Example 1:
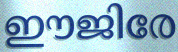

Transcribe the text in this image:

ഈജിരേ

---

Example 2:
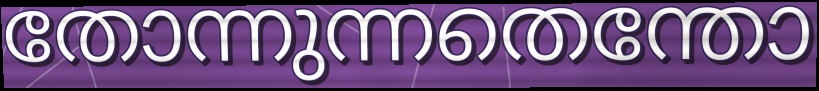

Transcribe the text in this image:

തോന്നുന്നതെന്തോ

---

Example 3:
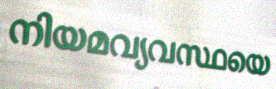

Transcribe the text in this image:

നിയമവ്യവസ്ഥയെ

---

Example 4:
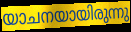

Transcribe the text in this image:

യാചനയായിരുന്നു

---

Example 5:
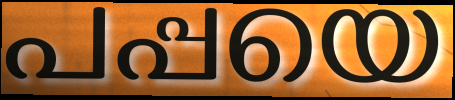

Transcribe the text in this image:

പപ്പയെ